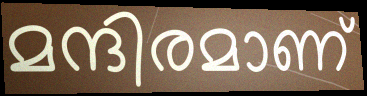
മന്ദിരമാണ്